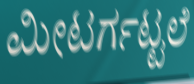
ಮೀಟರ್ಗಟ್ಟಲೆ